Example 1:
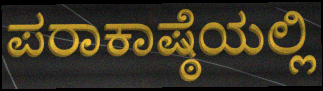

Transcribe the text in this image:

ಪರಾಕಾಷ್ಠೆಯಲ್ಲಿ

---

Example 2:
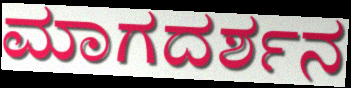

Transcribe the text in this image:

ಮಾಗದರ್ಶನ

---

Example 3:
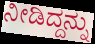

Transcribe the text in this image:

ನೀಡಿದ್ದನ್ನು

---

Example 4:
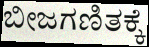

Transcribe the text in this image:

ಬೀಜಗಣಿತಕ್ಕೆ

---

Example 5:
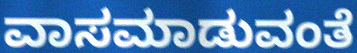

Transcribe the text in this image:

ವಾಸಮಾಡುವಂತೆ